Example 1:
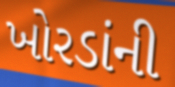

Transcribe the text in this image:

ખોરડાંની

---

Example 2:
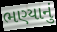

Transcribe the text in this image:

ભણ્યાનું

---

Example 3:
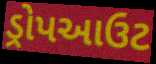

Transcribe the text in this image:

ડ્રોપઆઉટ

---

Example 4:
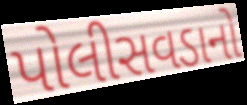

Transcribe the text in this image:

પોલીસવડાનો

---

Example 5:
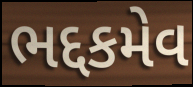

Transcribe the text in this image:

ભદ્દકમેવ